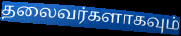
தலைவர்களாகவும்